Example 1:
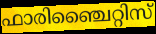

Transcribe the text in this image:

ഫാരിഞ്ചൈറ്റിസ്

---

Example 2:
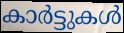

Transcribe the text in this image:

കാർട്ടുകൾ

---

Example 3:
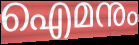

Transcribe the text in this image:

ഐമനും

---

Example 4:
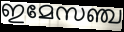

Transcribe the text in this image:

ഇമേസഞ്ച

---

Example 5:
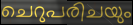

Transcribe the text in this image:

ചെറുപരിചയും